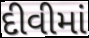
દીવીમાં